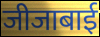
जीजाबाई